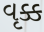
વૃક્ક